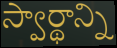
స్వార్థాన్ని